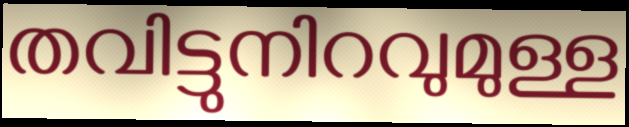
തവിട്ടുനിറവുമുള്ള